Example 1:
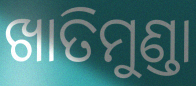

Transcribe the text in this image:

ଖାତିମୁଣ୍ଡା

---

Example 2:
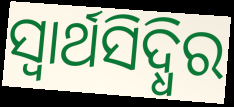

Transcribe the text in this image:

ସ୍ଵାର୍ଥସିଦ୍ଧିର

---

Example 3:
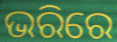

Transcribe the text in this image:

ଭରିରେ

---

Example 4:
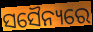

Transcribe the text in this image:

ସସୈନ୍ୟରେ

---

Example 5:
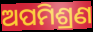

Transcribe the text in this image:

ଅପମିଶ୍ରଣ